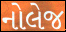
નોલેજ